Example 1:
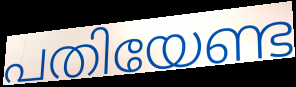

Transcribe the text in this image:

പതിയേണ്ട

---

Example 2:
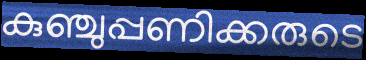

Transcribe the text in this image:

കുഞ്ചുപ്പണിക്കരുടെ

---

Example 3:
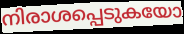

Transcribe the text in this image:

നിരാശപ്പെടുകയോ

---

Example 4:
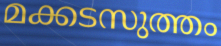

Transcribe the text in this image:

മക്കടസുത്തം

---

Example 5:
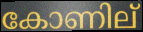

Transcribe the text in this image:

കോണില്